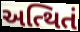
અત્થિતં